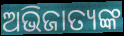
ଅଭିଜାତ୍ୟଙ୍କ